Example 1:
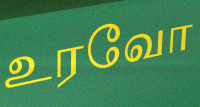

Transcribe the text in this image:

உரவோ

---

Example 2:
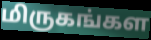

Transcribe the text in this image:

மிருகங்கள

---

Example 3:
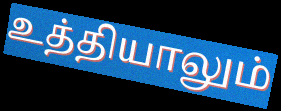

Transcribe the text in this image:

உத்தியாலும்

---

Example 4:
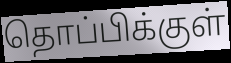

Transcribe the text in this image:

தொப்பிக்குள்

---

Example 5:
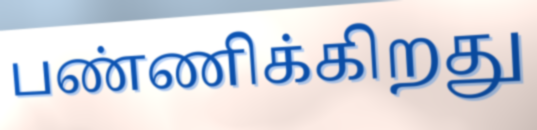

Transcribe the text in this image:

பண்ணிக்கிறது